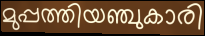
മുപ്പത്തിയഞ്ചുകാരി